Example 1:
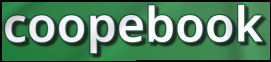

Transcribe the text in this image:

coopebook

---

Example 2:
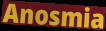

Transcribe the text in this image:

Anosmia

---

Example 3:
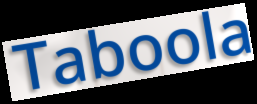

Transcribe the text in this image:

Taboola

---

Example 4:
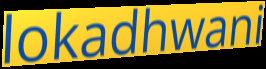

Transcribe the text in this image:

lokadhwani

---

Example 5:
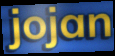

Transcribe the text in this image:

jojan